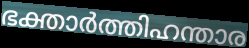
ഭക്താർത്തിഹന്താര